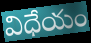
విధేయం